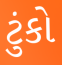
ટુંકો